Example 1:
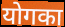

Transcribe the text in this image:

योगका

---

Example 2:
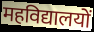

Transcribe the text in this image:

महविद्यालयों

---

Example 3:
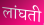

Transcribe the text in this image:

लांघती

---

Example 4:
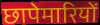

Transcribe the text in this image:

छापेमारियों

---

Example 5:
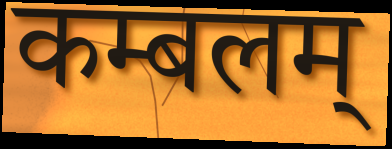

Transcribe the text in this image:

कम्बलम्